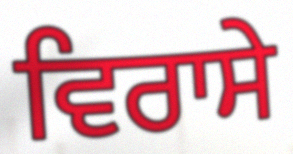
ਵਿਰਾਸੇ